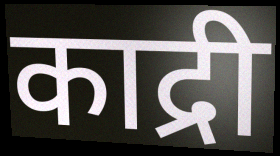
काद्री